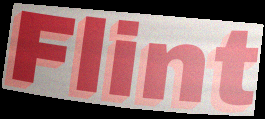
Flint